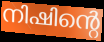
നിഷിന്റെ